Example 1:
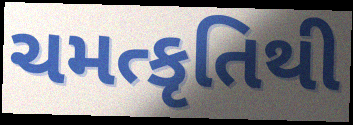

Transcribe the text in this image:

ચમત્કૃતિથી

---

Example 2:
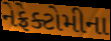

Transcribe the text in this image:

નેફ્રેક્ટોમીના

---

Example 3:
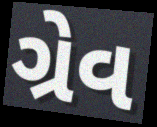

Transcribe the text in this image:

ગ્રેવ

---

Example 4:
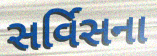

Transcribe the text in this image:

સર્વિસના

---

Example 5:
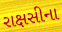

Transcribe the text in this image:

રાક્ષસીના